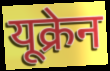
यूक्रेन